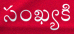
సంఖ్యకి